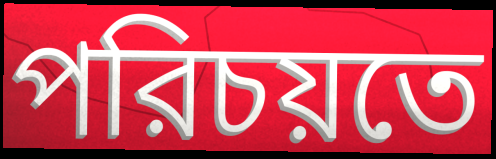
পরিচয়তে